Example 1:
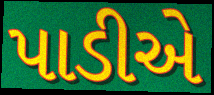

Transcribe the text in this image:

પાડીએ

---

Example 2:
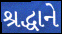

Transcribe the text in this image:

શ્રદ્ધાને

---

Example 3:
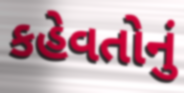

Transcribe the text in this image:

કહેવતોનું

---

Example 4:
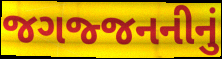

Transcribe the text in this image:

જગજ્જનનીનું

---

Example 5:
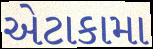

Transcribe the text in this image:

એટાકામા